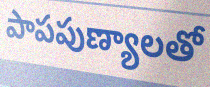
పాపపుణ్యాలతో